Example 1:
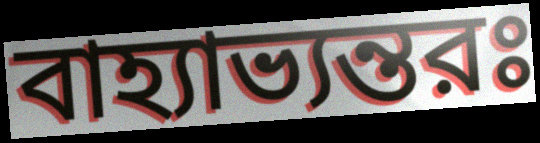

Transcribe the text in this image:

বাহ্যাভ্যন্তরঃ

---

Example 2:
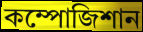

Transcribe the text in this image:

কম্পোজিশান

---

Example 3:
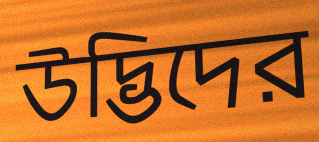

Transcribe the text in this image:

উদ্ভিদের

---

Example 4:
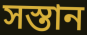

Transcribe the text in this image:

সস্তান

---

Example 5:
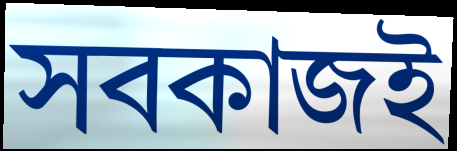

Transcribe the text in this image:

সবকাজই